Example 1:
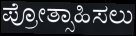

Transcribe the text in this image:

ಪ್ರೋತ್ಸಾಹಿಸಲು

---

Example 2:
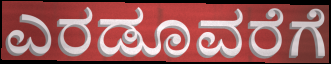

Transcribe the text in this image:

ಎರಡೂವರೆಗೆ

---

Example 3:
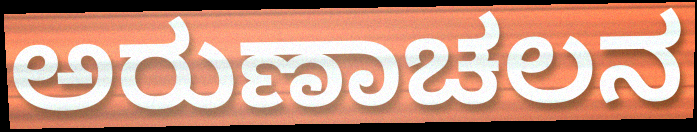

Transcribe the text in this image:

ಅರುಣಾಚಲನ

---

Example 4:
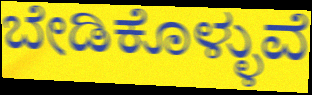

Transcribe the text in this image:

ಬೇಡಿಕೊಳ್ಳುವೆ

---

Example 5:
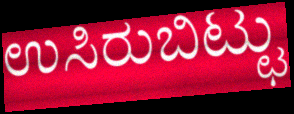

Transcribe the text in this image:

ಉಸಿರುಬಿಟ್ಟು